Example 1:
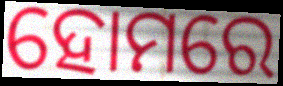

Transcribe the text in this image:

ହୋମରେ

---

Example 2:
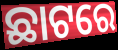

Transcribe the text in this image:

ଛାଟରେ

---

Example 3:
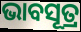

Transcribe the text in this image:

ଭାବସୂତ୍ର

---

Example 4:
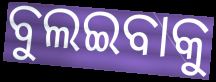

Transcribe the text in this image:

ବୁଲଇବାକୁ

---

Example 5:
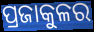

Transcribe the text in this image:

ପ୍ରଜାକୁଳର